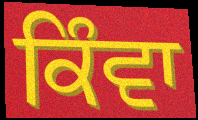
ਕਿੰਵਾ